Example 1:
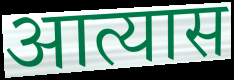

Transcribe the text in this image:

आत्यास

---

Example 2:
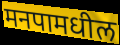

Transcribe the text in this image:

मनपामधील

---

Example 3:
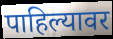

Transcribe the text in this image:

पाहिल्‍यावर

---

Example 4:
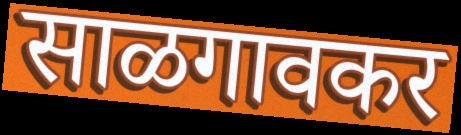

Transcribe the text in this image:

साळगावकर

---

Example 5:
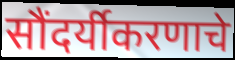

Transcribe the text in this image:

सौंदर्यीकरणाचे